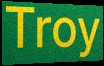
Troy